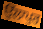
ਉੱਲਾਪੁਰ